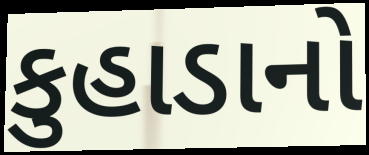
કુહાડાનો